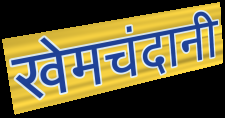
खेमचंदानी